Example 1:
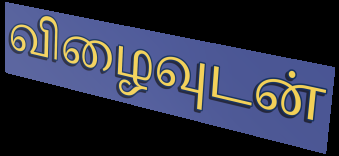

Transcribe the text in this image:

விழைவுடன்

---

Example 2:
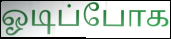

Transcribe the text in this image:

ஓடிப்போக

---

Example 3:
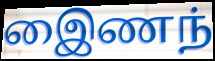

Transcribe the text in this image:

இைணந்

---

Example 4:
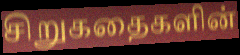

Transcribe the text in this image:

சிறுகதைகளின்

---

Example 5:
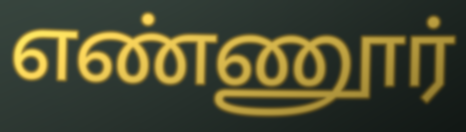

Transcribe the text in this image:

எண்ணூர்